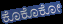
ಕೊಕೊಕೋ